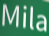
Mila